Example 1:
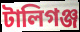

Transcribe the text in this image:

টালিগঞ্জ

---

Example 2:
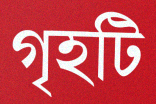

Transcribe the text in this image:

গৃহটি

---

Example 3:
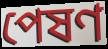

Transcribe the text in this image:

পেষণ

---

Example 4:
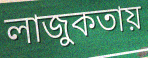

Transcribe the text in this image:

লাজুকতায়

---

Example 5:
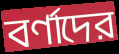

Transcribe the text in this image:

বর্ণাদের